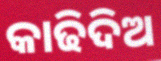
କାଢିଦିଅ